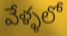
వేళ్ళలో